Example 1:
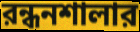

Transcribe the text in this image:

রন্ধনশালার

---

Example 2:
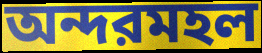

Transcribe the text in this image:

অন্দরমহল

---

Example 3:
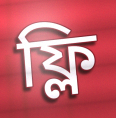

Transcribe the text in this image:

ফ্লি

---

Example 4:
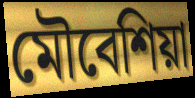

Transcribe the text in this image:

মৌবেশিয়া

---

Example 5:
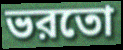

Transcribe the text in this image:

ভরতো